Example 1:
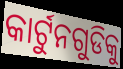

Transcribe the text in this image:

କାର୍ଟୁନଗୁଡିକୁ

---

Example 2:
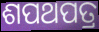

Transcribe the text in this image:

ଶପଥପତ୍ର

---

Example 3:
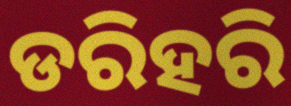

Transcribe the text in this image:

ଡରିହରି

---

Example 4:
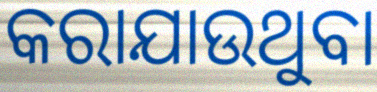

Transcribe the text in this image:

କରାଯାଉଥୁବା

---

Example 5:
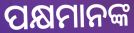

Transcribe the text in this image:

ପକ୍ଷମାନଙ୍କ